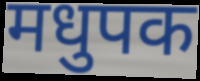
मधुपक